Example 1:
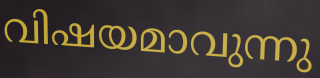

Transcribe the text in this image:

വിഷയമാവുന്നു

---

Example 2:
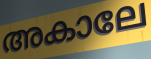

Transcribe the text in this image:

അകാലേ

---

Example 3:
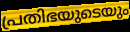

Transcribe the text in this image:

പ്രതിഭയുടെയും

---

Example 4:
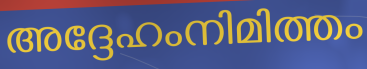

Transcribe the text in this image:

അദ്ദേഹംനിമിത്തം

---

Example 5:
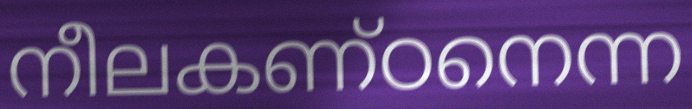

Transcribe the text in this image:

നീലകണ്ഠനെന്ന